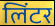
लिंटर